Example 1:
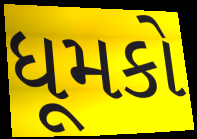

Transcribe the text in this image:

ધૂમકો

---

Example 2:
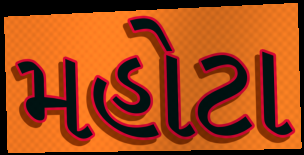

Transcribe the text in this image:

મહોટા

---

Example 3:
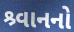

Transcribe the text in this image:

શ્ર્વાનનો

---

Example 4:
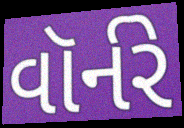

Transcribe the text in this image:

વૉર્નરે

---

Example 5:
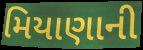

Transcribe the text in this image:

મિયાણાની